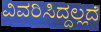
ವಿವರಿಸಿದ್ದಲ್ಲದೆ